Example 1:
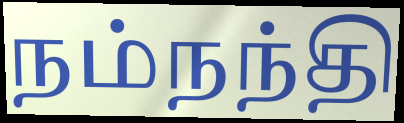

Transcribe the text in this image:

நம்நந்தி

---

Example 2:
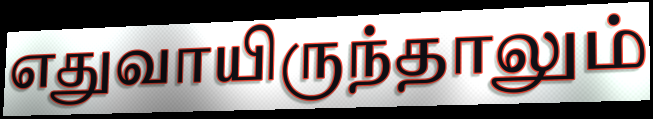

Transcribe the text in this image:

எதுவாயிருந்தாலும்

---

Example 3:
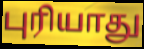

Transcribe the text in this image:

புரியாது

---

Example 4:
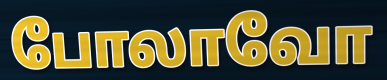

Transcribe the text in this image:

போலாவோ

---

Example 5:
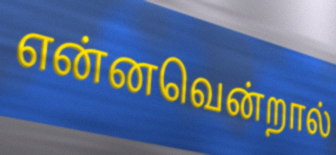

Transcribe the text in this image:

என்னவென்றால்